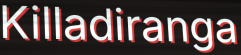
Killadiranga